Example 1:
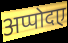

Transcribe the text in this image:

अप्पोदए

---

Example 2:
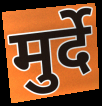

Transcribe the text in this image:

मुर्दे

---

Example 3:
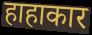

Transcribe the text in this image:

हाहाकार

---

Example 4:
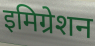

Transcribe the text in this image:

इमिग्रेशन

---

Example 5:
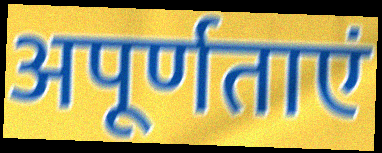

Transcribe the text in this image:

अपूर्णताएं